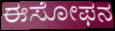
ಈಸೋಫನ